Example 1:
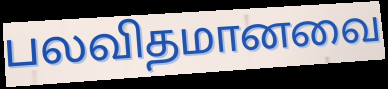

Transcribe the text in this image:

பலவிதமானவை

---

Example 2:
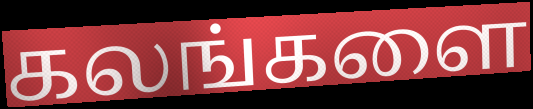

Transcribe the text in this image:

கலங்களை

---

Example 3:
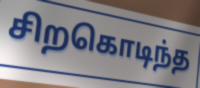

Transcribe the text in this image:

சிறகொடிந்த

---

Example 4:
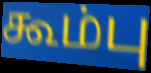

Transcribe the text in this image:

கூம்பு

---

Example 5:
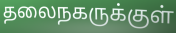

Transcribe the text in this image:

தலைநகருக்குள்